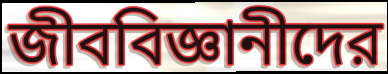
জীববিজ্ঞানীদের